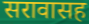
सरावासह